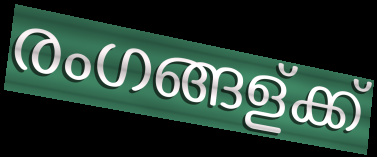
രംഗങ്ങള്ക്ക്